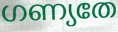
ഗണ്യതേ